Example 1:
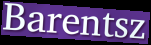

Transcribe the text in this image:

Barentsz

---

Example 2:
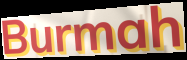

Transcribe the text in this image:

Burmah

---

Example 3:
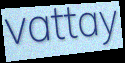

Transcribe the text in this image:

vattay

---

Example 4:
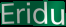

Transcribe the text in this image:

Eridu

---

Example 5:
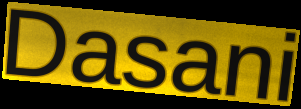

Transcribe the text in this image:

Dasani